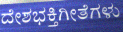
ದೇಶಭಕ್ತಿಗೀತೆಗಳು